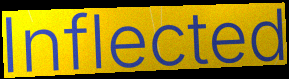
Inflected